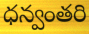
ధన్వంతరి